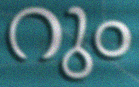
റും